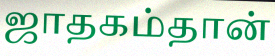
ஜாதகம்தான்